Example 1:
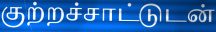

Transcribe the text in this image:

குற்றச்சாட்டுடன்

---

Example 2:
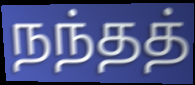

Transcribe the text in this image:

நந்தத்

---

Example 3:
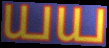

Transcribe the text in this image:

யய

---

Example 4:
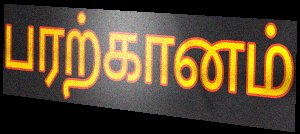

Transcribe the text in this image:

பரற்கானம்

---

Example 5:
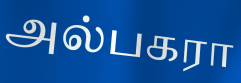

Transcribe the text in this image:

அல்பகரா